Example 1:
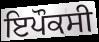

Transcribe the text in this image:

ਇਪੌਕਸੀ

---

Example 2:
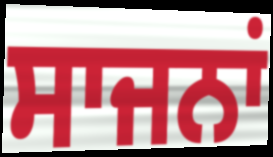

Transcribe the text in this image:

ਸਾਜਨਾਂ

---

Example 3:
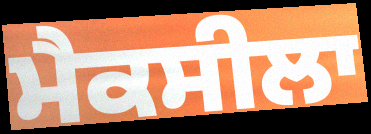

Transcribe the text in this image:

ਮੈਕਸੀਲਾ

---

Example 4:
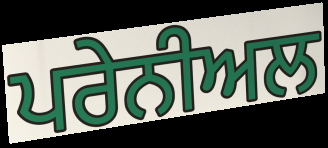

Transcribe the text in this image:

ਪਰੇਨੀਅਲ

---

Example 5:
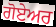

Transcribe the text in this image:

ਗੋਏਅਰ